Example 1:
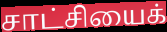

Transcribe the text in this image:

சாட்சியைக்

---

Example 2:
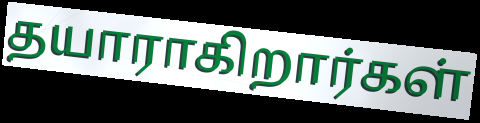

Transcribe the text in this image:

தயாராகிறார்கள்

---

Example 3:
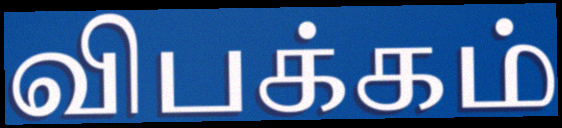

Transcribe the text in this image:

விபக்கம்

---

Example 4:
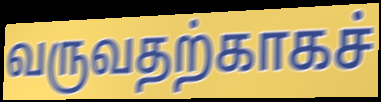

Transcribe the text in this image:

வருவதற்காகச்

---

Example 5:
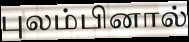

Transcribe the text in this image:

புலம்பினால்